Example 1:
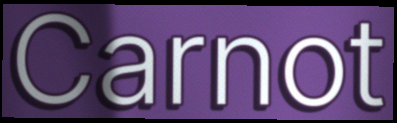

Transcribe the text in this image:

Carnot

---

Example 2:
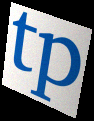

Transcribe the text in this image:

tp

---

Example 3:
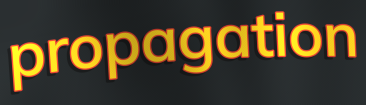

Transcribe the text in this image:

propagation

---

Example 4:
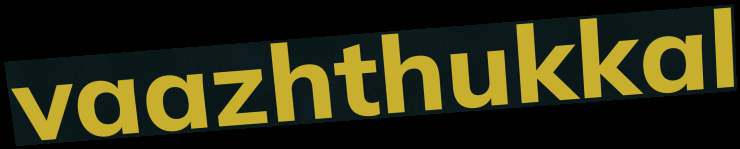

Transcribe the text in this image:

vaazhthukkal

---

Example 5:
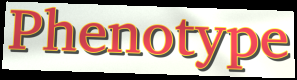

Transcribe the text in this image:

Phenotype